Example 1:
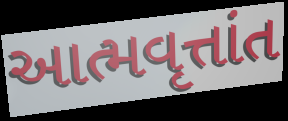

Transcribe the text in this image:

આત્મવૃત્તાંત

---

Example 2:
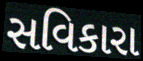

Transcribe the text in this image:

સવિકારા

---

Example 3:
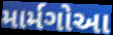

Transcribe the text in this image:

માર્મગોઆ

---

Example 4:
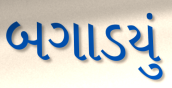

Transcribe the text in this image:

બગાડયું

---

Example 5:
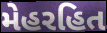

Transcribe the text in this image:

મેહરહિત